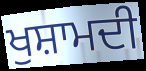
ਖੁਸ਼ਾਮਦੀ